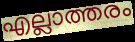
എല്ലാത്തരം